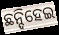
ଛନ୍ଦିହେଇ